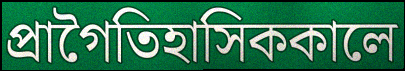
প্রাগৈতিহাসিককালে